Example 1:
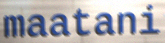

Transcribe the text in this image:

maatani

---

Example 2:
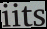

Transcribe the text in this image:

iits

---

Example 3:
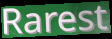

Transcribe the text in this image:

Rarest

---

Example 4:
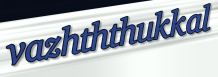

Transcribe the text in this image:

vazhththukkal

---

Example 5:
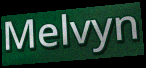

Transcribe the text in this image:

Melvyn